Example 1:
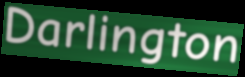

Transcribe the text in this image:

Darlington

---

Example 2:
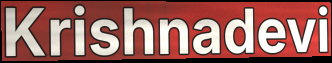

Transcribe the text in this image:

Krishnadevi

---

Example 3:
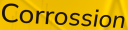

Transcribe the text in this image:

Corrossion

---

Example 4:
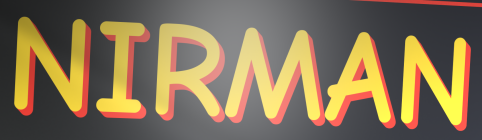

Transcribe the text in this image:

NIRMAN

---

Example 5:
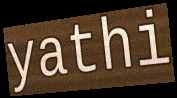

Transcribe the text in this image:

yathi